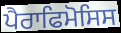
ਪੈਰਾਫਿਮੋਸਿਸ